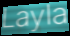
Layla